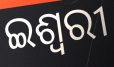
ଇଶ୍ୱରୀ